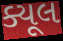
ક્યૂલ